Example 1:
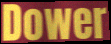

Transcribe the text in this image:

Dower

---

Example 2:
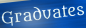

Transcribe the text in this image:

Graduates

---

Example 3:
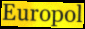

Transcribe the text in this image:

Europol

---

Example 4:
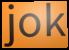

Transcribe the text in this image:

jok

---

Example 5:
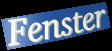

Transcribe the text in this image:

Fenster